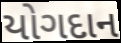
યોગદાન